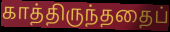
காத்திருந்ததைப்